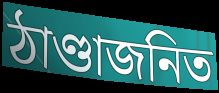
ঠাণ্ডাজনিত